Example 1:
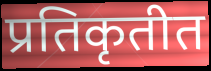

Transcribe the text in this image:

प्रतिकृतीत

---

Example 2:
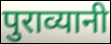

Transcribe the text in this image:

पुराव्यानी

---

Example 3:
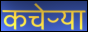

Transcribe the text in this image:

कचेऱ्या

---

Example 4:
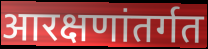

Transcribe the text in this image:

आरक्षणांतर्गत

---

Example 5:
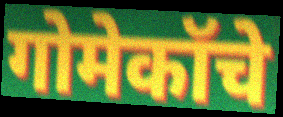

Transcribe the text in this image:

गोमेकॉचे